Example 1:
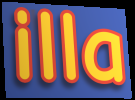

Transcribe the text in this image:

illa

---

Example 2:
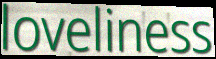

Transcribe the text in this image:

loveliness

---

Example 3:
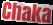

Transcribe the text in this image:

Chaka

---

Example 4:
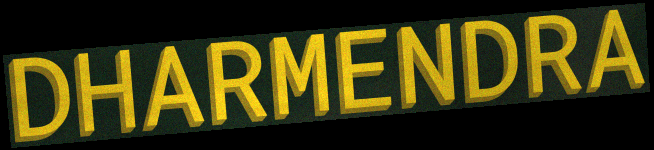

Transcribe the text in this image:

DHARMENDRA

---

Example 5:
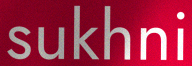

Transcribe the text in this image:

sukhni